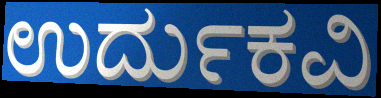
ಉರ್ದುಕವಿ